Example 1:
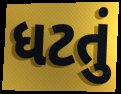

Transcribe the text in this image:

ધટતું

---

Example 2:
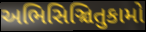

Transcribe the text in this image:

અભિસિઞ્ચિતુકામો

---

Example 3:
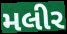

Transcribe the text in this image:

મલીર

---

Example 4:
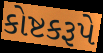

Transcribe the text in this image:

કોષ્ટકરૂપે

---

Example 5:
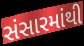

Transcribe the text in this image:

સંસારમાંથી